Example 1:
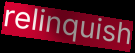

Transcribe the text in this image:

relinquish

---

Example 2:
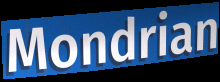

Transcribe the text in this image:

Mondrian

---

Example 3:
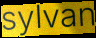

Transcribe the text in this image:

sylvan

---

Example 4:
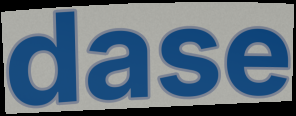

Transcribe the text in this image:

dase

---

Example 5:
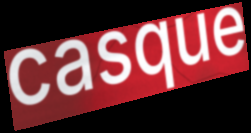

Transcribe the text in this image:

casque